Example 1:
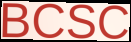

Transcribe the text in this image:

BCSC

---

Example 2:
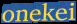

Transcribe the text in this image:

onekei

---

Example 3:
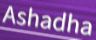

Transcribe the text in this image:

Ashadha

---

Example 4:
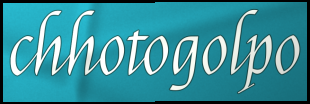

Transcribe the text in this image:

chhotogolpo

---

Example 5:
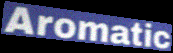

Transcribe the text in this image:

Aromatic